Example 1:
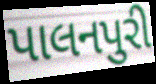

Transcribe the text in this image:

પાલનપુરી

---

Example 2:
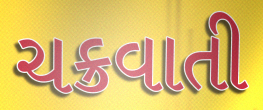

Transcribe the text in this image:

ચક્રવાતી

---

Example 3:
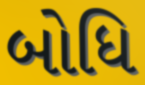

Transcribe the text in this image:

બોધિ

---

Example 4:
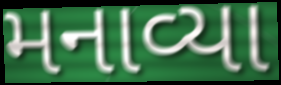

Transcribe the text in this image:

મનાવ્યા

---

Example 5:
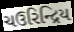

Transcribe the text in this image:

ચઉરિન્દ્રિય